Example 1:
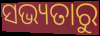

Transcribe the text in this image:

ସଭ୍ୟତାରୁ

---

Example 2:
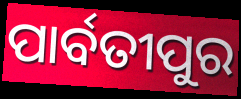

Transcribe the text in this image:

ପାର୍ବତୀପୁର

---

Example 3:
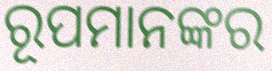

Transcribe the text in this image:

ରୂପମାନଙ୍କର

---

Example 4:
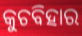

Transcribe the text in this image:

କୁଚବିହାର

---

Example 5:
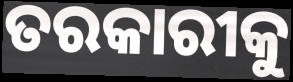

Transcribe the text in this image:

ତରକାରୀକୁ